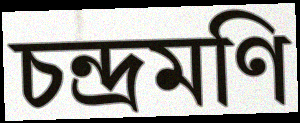
চন্দ্রমণি